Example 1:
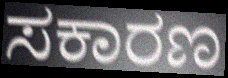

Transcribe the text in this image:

ಸಕಾರಣ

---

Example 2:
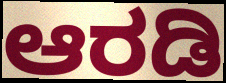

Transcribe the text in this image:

ಆರಡಿ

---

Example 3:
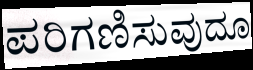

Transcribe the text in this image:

ಪರಿಗಣಿಸುವುದೂ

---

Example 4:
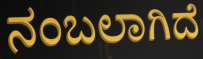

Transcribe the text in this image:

ನಂಬಲಾಗಿದೆ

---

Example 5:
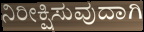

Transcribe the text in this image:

ನಿರೀಕ್ಷಿಸುವುದಾಗಿ